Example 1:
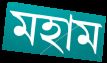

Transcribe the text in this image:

মহাম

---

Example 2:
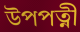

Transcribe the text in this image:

উপপত্নী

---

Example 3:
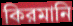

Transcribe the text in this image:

কিরমানি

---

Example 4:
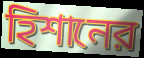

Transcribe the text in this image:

হিশানের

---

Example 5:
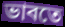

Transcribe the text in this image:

ভাবতে